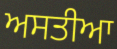
ਅਸਤੀਆ